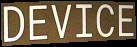
DEVICE